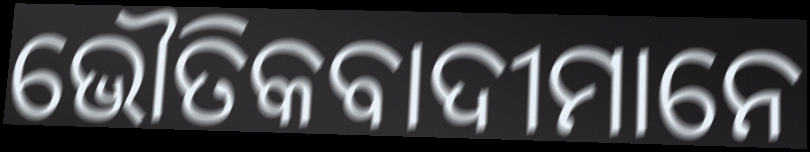
ଭୌତିକବାଦୀମାନେ